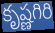
కృష్ణగిరి